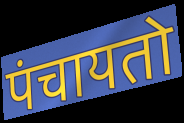
पंचायतो